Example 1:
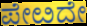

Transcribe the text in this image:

ಪೇೞದೇ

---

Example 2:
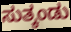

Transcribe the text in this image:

ಸುತ್ಕಂಡು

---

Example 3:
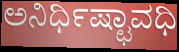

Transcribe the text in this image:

ಅನಿರ್ಧಿಷ್ಟಾವಧಿ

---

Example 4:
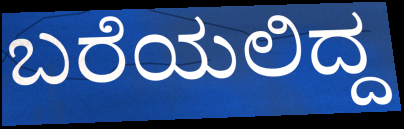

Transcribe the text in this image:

ಬರೆಯಲಿದ್ದ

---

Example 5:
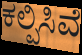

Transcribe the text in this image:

ಕಲ್ಪಿಸಿವೆ